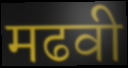
मढवी